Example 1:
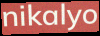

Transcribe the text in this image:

nikalyo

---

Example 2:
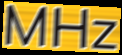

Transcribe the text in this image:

MHz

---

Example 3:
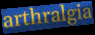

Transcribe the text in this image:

arthralgia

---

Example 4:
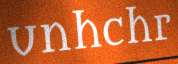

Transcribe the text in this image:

unhchr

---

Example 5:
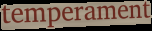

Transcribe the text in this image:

temperament